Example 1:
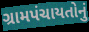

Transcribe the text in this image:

ગ્રામપંચાયતોનું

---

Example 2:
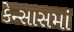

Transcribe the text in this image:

કેન્સાસમાં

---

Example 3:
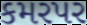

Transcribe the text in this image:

કમરપર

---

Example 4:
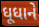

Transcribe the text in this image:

ધૂધાને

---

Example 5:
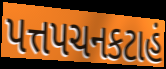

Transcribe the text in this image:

પત્તપચનકટાહં